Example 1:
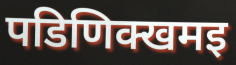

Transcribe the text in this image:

पडिणिक्खमइ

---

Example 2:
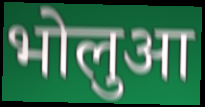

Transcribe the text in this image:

भोलुआ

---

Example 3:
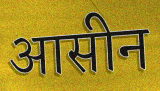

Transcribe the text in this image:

आसीन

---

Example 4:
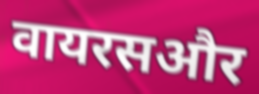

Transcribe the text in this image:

वायरसऔर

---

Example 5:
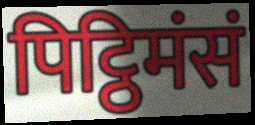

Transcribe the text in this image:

पिट्ठिमंसं